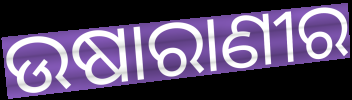
ଉଷାରାଣୀର